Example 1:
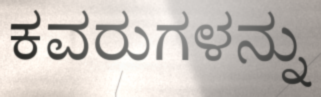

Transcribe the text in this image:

ಕವರುಗಳನ್ನು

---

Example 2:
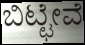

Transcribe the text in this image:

ಬಿಟ್ಟೇವೆ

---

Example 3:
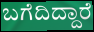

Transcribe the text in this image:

ಬಗೆದಿದ್ದಾರೆ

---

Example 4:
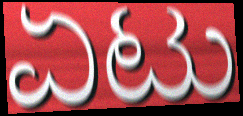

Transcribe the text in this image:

ಏಟು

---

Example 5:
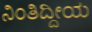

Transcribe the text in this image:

ನಿಂತಿದ್ದೀಯ